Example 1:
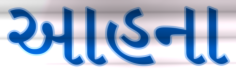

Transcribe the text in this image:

આહના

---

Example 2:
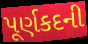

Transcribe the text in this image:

પૂર્ણકદની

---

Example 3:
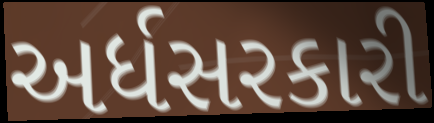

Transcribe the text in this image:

અર્ધસરકારી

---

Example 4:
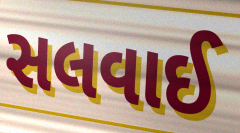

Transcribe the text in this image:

સલવાઈ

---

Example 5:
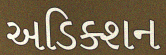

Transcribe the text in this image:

અડિક્શન